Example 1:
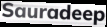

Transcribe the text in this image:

Sauradeep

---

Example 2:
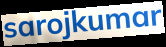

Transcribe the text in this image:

sarojkumar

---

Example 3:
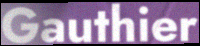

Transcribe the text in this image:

Gauthier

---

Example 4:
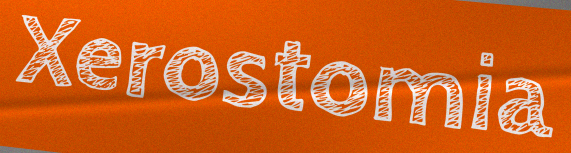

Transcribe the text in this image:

Xerostomia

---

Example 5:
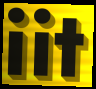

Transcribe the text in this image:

iit